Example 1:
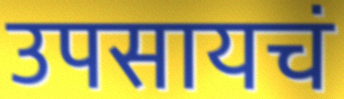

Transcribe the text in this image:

उपसायचं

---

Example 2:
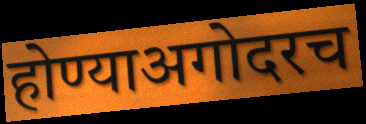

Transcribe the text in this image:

होण्याअगोदरच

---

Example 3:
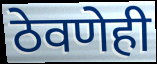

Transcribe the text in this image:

ठेवणेही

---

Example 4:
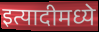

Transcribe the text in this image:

इत्यादीमध्ये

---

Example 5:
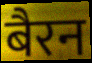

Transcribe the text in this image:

बैरन